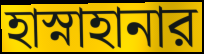
হাস্নাহানার